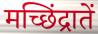
मच्छिंद्रातें